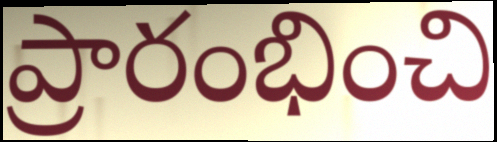
ప్రారంభించి